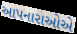
આપનારાઓએ